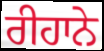
ਰੀਹਾਨੇ